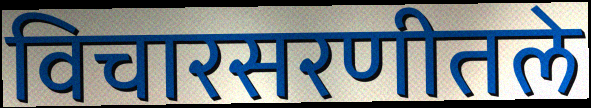
विचारसरणीतले